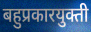
बहुप्रकारयुक्ती